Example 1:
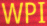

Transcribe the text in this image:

WPI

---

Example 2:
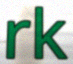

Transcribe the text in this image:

rk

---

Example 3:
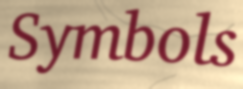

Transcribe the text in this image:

Symbols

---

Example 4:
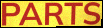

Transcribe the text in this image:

PARTS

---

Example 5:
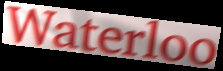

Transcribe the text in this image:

Waterloo